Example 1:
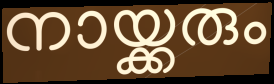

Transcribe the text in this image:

നായ്ക്കരും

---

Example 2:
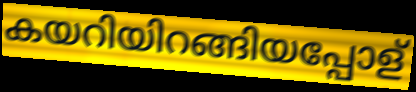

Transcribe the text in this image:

കയറിയിറങ്ങിയപ്പോള്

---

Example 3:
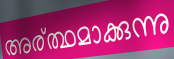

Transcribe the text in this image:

അര്ത്ഥമാക്കുന്നു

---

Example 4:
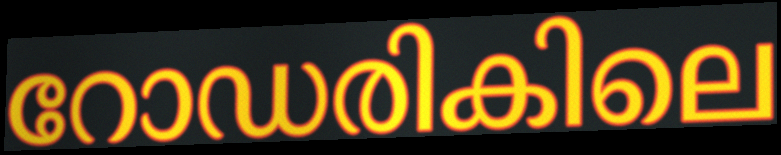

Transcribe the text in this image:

റോഡരികിലെ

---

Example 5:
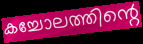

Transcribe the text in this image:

കച്ചോലത്തിന്റെ